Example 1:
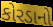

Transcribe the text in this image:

કોરડાનો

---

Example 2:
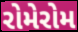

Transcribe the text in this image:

રોમેરોમ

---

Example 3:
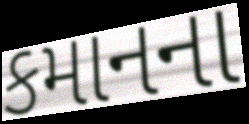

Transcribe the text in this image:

કમાનના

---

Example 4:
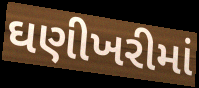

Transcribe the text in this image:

ઘણીખરીમાં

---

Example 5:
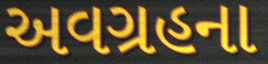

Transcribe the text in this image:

અવગ્રહના